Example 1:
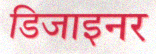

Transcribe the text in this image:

डिजाइनर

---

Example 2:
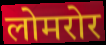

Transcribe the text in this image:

लोमरोर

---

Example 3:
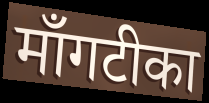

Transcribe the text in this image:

माँगटीका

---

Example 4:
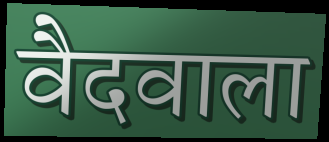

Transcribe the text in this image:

वैदवाला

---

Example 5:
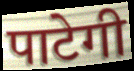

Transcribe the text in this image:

पाटेगी